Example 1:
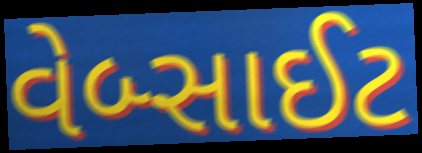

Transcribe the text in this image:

વેબ્સાઈટ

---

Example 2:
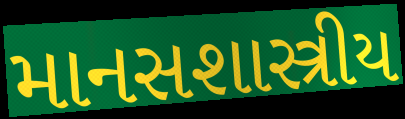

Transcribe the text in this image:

માનસશાસ્ત્રીય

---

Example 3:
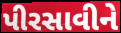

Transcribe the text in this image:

પીરસાવીને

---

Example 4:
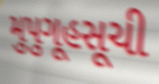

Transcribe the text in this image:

મુપુગૂહસૂચી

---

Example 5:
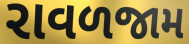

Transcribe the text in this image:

રાવળજામ